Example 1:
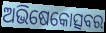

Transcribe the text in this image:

ଅଭିଷେକୋତ୍ସବର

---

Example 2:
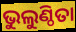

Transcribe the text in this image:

ଭୁଲୁଣ୍ଠିତା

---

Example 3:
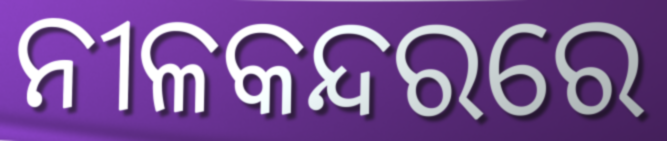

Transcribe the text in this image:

ନୀଳକନ୍ଦରରେ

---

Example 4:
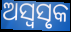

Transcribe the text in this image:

ଅସ୍ୱସୃକ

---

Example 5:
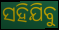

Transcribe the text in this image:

ସହିଯିବୁ